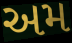
અમ